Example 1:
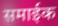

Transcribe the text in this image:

समाईक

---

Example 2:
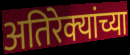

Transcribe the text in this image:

अतिरेक्‍यांच्या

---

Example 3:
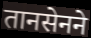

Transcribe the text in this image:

तानसेनने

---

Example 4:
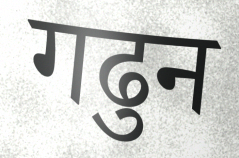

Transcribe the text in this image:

गढुन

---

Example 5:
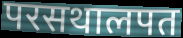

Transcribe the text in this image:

परसथालपत